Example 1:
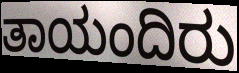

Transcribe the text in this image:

ತಾಯಂದಿರು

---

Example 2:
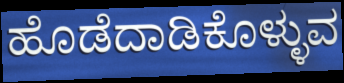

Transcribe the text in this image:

ಹೊಡೆದಾಡಿಕೊಳ್ಳುವ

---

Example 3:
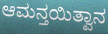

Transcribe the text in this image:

ಆಮನ್ತಯಿತ್ವಾನ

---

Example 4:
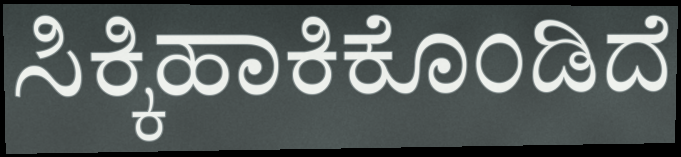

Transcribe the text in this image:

ಸಿಕ್ಕಿಹಾಕಿಕೊಂಡಿದೆ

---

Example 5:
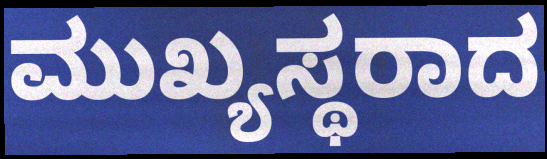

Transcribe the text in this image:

ಮುಖ್ಯಸ್ಥರಾದ